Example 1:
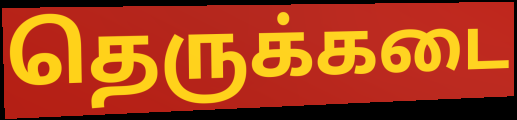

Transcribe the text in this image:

தெருக்கடை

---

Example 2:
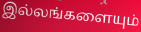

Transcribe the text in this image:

இல்லங்களையும்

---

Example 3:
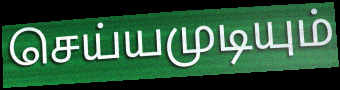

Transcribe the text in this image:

செய்யமுடியும்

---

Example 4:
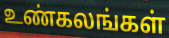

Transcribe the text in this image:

உண்கலங்கள்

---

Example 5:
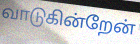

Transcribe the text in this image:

வாடுகின்றேன்